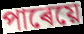
পাৰেয়ে